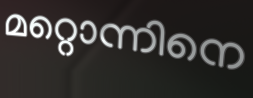
മറ്റൊന്നിനെ